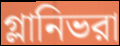
গ্লানিভরা